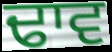
ਢਾਵ